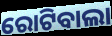
ରୋଟିବାଲା